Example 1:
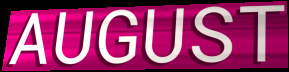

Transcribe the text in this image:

AUGUST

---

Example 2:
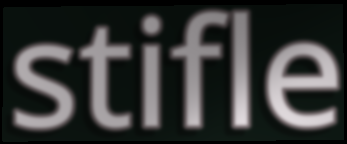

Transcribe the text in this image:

stifle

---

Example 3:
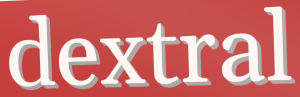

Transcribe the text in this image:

dextral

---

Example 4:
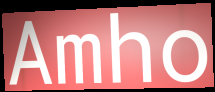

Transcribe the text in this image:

Amho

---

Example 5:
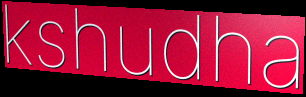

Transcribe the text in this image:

kshudha